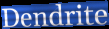
Dendrite